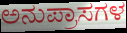
ಅನುಪ್ರಾಸಗಳ